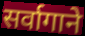
सर्वागाने